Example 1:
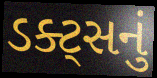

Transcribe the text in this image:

ડક્ટ્સનું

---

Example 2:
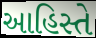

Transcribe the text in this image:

આહિસ્તે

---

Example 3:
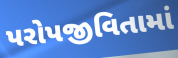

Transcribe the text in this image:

પરોપજીવિતામાં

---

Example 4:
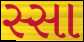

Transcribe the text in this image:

સ્સા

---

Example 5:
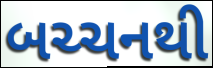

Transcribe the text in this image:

બચ્ચનથી